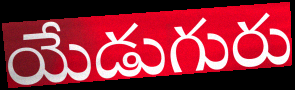
యేడుగురు